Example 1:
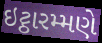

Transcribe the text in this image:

ઇટ્ઠારમ્મણે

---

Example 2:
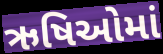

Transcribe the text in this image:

ઋષિઓમાં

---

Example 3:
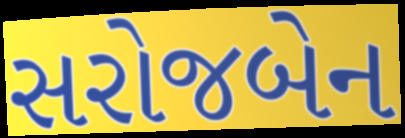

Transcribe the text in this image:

સરોજબેન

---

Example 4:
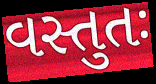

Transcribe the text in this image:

વસ્તુતઃ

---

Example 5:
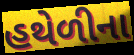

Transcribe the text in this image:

હથેળીના